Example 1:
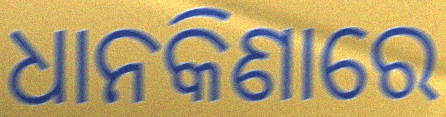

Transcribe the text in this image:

ଧାନକିଣାରେ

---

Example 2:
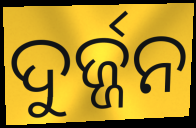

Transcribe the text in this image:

ଦୁର୍ଜ୍ଜନ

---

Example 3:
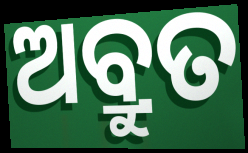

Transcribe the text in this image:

ଅବ୍ରୁତ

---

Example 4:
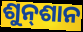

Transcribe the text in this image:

ଶୁନ୍‍ଶାନ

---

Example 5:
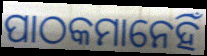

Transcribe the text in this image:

ପାଠକମାନେହିଁ